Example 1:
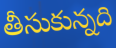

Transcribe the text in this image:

తీసుకున్నది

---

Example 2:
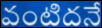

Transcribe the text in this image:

వంటిదనే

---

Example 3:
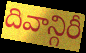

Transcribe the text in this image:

దివాన్గిరీ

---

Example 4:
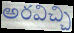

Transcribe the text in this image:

అరవిచ్చి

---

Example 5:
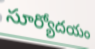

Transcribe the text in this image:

సూర్యోదయం